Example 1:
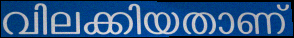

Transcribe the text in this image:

വിലക്കിയതാണ്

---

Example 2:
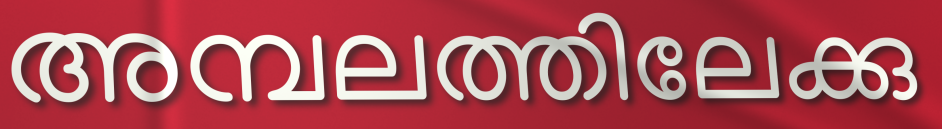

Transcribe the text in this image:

അമ്പലത്തിലേക്കു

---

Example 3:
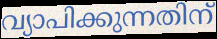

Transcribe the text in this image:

വ്യാപിക്കുന്നതിന്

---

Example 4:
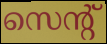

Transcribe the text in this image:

സെന്റ്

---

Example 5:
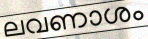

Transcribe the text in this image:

ലവണാശം